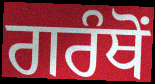
ਗਰੰਥੋਂ